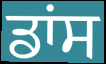
ਡਾਂਸ